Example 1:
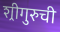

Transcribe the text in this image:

श्रीगुरुची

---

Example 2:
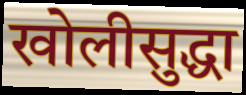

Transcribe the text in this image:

खोलीसुद्धा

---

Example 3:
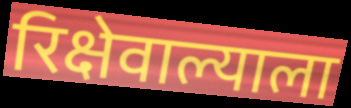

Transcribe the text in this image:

रिक्षेवाल्याला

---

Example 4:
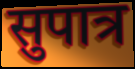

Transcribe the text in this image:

सुपात्र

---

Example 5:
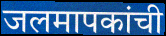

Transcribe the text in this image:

जलमापकांची